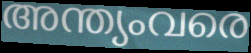
അന്ത്യംവരെ